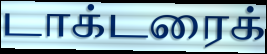
டாக்டரைக்